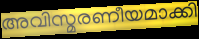
അവിസ്മരണീയമാക്കി